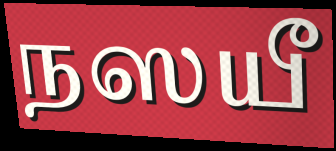
நஸயீ